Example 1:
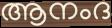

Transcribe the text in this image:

ആനംദ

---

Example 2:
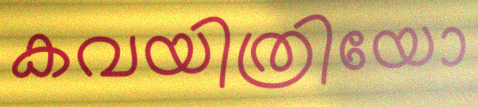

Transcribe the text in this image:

കവയിത്രിയോ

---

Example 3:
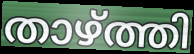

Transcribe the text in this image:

താഴ്ത്തി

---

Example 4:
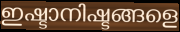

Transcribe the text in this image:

ഇഷ്ടാനിഷ്ടങ്ങളെ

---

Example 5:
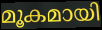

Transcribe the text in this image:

മൂകമായി